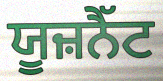
ਯੂਜ਼ਨੈੱਟ